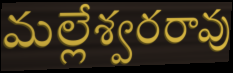
మల్లేశ్వరరావు